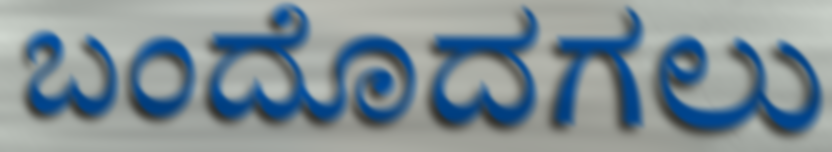
ಬಂದೊದಗಲು